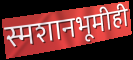
स्मशानभूमीही